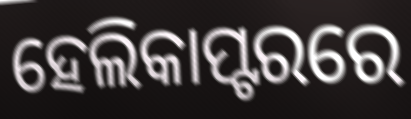
ହେଲିକାପ୍ଟରରେ